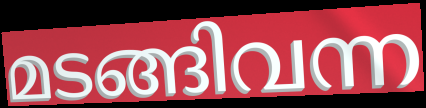
മടങ്ങിവന്ന